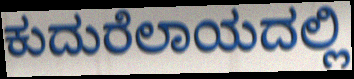
ಕುದುರೆಲಾಯದಲ್ಲಿ